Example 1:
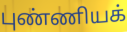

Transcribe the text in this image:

புண்ணியக்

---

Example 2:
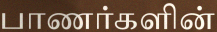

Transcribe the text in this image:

பாணர்களின்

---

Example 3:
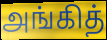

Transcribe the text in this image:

அங்கித்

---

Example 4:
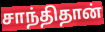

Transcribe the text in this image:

சாந்திதான்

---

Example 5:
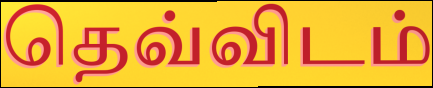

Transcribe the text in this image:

தெவ்விடம்